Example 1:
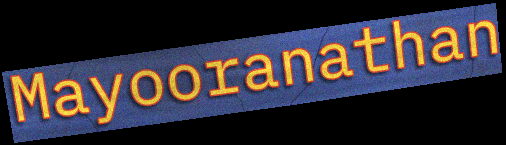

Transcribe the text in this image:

Mayooranathan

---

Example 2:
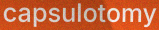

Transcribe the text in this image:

capsulotomy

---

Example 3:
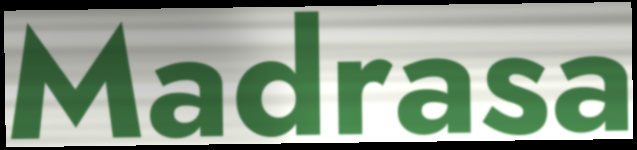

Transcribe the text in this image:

Madrasa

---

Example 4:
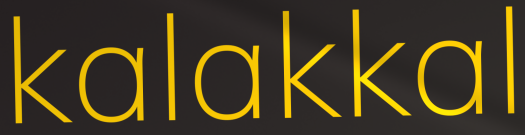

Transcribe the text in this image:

kalakkal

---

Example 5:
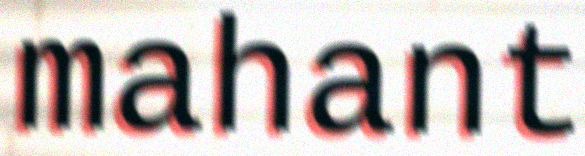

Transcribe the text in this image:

mahant